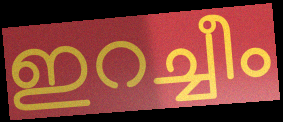
ഇറച്ചീം